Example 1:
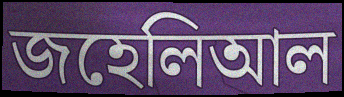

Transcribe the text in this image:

জহেলিআল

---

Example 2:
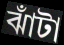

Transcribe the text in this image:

ঝাঁটা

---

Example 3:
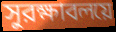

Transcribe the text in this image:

সুরক্ষাবলয়ে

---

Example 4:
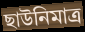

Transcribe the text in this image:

ছাউনিমাত্র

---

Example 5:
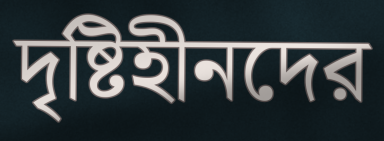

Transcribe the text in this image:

দৃষ্টিহীনদের